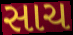
સાચ